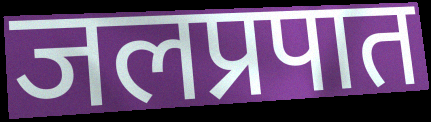
जलप्रपात